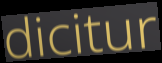
dicitur